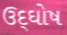
ઉદ્‌ઘોષ